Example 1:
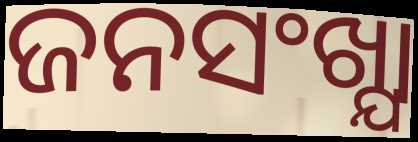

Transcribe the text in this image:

ଜନସଂଖ୍ଯା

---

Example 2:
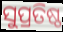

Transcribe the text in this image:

ସୁପ୍ରତିଷ୍ଠ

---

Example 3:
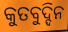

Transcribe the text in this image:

କୁତବୁଦ୍ଦିନ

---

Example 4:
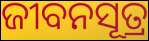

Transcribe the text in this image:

ଜୀବନସୂତ୍ର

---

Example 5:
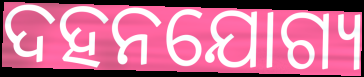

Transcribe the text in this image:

ଦହନଯୋଗ୍ୟ